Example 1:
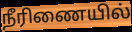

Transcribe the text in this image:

நீரிணையில்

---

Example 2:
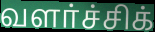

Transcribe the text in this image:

வளர்ச்சிக்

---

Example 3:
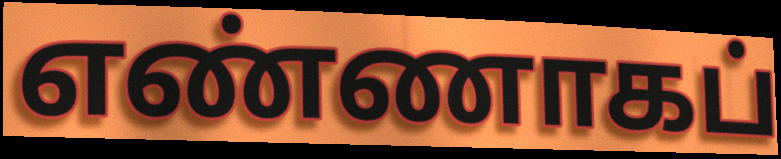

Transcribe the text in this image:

எண்ணாகப்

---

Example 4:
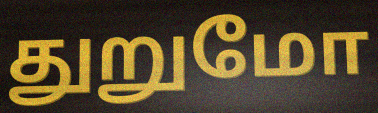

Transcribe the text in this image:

துறுமோ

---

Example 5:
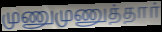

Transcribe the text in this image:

முணுமுணுத்தார்